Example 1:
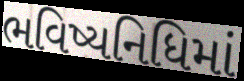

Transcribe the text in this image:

ભવિષ્યનિધિમાં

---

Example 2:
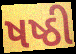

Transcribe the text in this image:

ષષ્ઠી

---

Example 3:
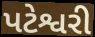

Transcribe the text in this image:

પટેશ્વરી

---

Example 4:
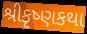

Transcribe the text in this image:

શ્રીકૃષ્ણકથા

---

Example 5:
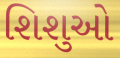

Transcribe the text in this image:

શિશુઓ